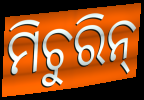
ମିଚୁରିନ୍